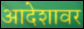
आदेशावर